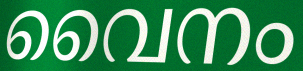
വൈനം